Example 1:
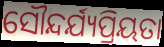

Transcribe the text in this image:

ସୌନ୍ଦର୍ଯ୍ୟପ୍ରିୟତା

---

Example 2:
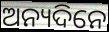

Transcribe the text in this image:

ଅନ୍ୟଦିନେ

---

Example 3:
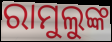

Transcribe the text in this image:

ରାମୁଲୁଙ୍କ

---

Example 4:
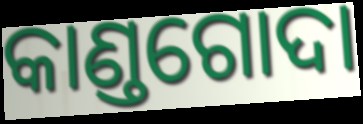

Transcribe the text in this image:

କାଣ୍ଡଗୋଦା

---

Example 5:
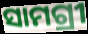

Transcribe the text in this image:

ସାମଗ୍ରୀ